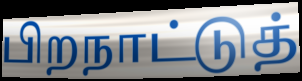
பிறநாட்டுத்